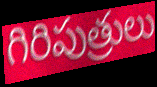
గిరిపుత్రులు